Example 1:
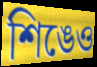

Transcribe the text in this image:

শিঙেও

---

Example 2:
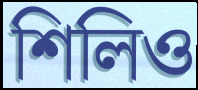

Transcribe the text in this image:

শিলিও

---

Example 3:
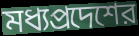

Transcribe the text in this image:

মধ্যপ্রদেশের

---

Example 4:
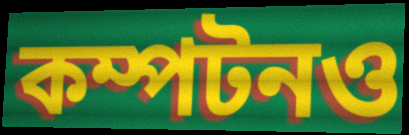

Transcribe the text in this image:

কম্পটনও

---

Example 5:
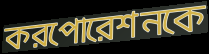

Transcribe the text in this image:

করপোরেশনকে